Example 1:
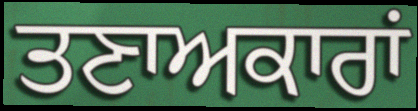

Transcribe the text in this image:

ਤਣਾਅਕਾਰਾਂ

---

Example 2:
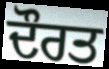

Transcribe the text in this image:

ਦੌਰਤ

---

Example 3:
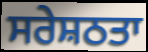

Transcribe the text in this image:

ਸਰੇਸ਼ਠਤਾ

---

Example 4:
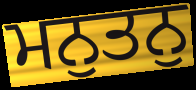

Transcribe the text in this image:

ਮਨੁਤਨੁ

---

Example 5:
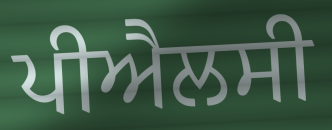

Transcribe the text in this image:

ਪੀਐਲਸੀ